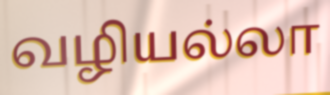
வழியல்லா